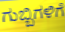
ಗುಬ್ಬಿಗಳಿಗೆ